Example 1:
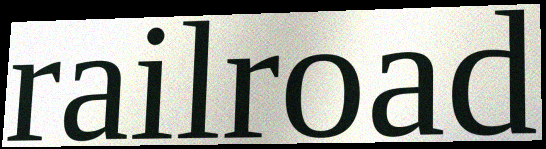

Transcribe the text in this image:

railroad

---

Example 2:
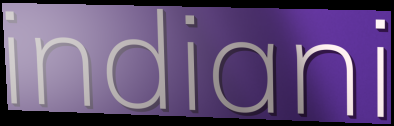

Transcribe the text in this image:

indiani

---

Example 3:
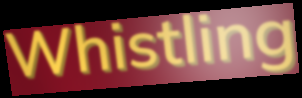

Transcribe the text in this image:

Whistling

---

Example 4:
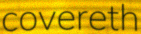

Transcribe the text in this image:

covereth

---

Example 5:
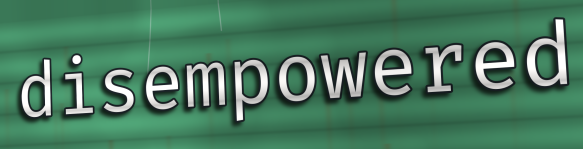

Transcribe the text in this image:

disempowered